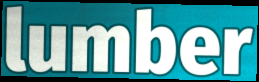
lumber